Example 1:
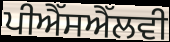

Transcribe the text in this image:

ਪੀਐੱਸਐੱਲਵੀ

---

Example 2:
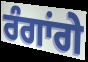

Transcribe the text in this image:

ਰੰਗਾਂਗੇ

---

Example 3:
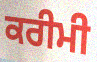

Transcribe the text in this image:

ਕਰੀਮੀ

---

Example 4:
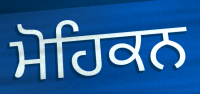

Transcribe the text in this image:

ਮੋਹਿਕਨ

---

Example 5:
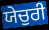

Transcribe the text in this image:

ਯੇਚੁਰੀ